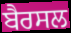
ਬੈਰਸਲ